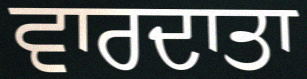
ਵਾਰਦਾਤਾ